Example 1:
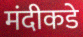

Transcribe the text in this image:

मंदीकडे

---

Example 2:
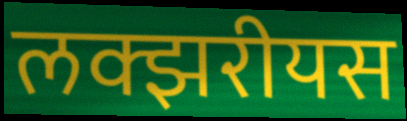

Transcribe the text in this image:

लक्झरीयस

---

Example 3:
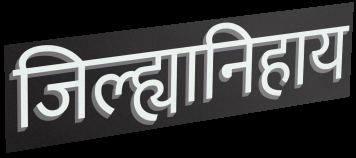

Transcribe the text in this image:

जिल्ह्यानिहाय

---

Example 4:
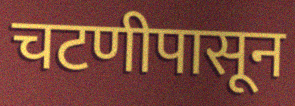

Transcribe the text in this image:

चटणीपासून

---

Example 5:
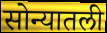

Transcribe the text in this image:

सोन्यातली